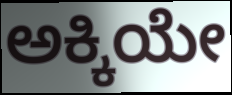
ಅಕ್ಕಿಯೇ